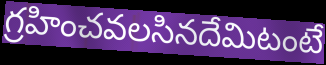
గ్రహించవలసినదేమిటంటే